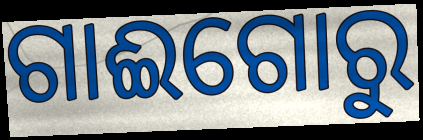
ଗାଈଗୋରୁ